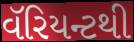
વૅરિયન્ટથી